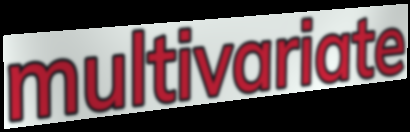
multivariate